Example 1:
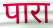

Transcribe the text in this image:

पारा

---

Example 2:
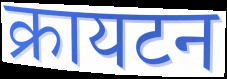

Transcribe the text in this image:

क्रायटन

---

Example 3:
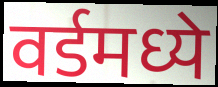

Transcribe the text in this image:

वर्डमध्ये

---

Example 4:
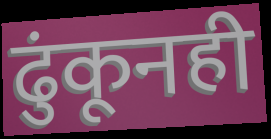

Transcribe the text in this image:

ढुंकूनही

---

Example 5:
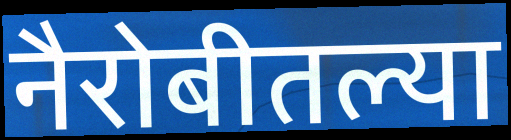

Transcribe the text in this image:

नैरोबीतल्या